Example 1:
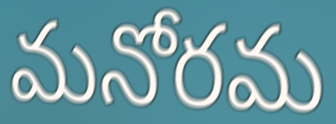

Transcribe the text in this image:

మనోరమ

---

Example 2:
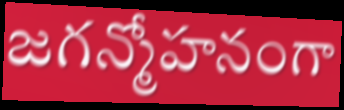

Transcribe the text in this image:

జగన్మోహనంగా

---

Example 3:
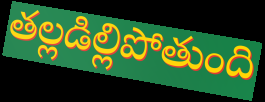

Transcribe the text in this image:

తల్లడిల్లిపోతుంది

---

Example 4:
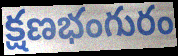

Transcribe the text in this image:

క్షణభంగురం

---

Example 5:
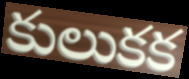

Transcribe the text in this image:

కులుకక